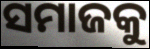
ସମାଜକୁ